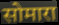
सोमारा